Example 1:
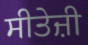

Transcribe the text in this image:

ਸੀਤੇਜ਼ੀ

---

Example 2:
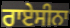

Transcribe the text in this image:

ਰਾਏਸੀਨਾ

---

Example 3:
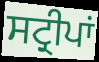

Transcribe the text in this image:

ਸਟ੍ਰੀਪਾਂ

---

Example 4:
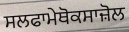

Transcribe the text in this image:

ਸਲਫਾਮੇਥੋਕਸਾਜ਼ੋਲ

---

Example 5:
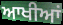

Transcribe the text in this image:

ਆਖੀਆਂ